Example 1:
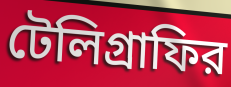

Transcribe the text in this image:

টেলিগ্রাফির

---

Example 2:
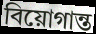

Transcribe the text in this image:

বিয়োগান্ত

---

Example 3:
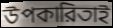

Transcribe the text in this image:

উপকারিতাই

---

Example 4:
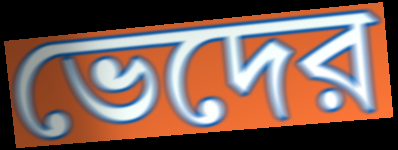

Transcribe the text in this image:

ভেদের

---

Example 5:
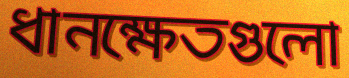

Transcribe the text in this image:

ধানক্ষেতগুলো